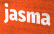
jasma